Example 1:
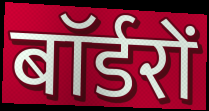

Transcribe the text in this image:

बॉर्डरों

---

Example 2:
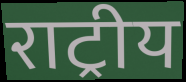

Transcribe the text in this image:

राट्रीय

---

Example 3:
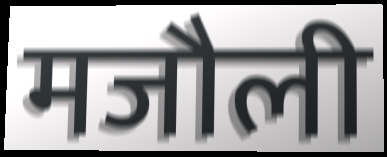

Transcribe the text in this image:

मजौली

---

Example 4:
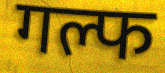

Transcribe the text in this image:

गल्फ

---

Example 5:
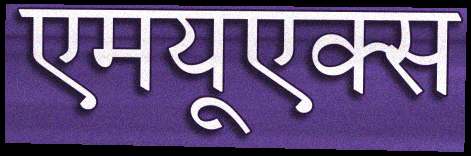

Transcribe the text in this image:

एमयूएक्स